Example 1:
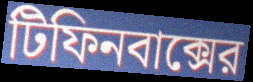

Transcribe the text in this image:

টিফিনবাক্সের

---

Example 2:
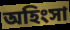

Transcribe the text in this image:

অহিংসা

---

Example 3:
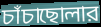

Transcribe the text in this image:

চাঁচাছোলার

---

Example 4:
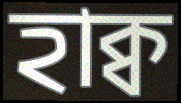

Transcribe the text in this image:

হাক্ব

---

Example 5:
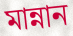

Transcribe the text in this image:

মান্নান